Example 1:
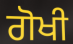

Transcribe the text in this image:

ਗੋਖੀ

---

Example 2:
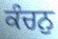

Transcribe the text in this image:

ਕੰਚਨੁ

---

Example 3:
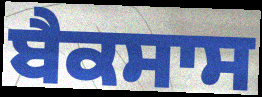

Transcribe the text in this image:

ਬੈਕਸਾਸ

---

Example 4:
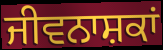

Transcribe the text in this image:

ਜੀਵਨਾਸ਼ਕਾਂ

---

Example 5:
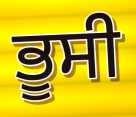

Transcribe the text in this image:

ਭੂਸੀ